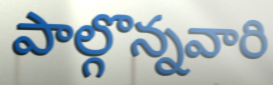
పాల్గొన్నవారి